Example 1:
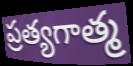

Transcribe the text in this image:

ప్రత్యగాత్మ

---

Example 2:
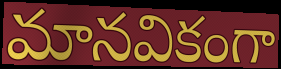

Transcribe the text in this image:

మానవికంగా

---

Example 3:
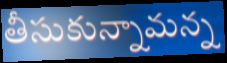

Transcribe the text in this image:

తీసుకున్నామన్న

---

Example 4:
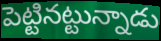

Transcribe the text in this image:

పెట్టినట్టున్నాడు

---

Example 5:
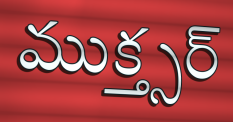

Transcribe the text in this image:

ముక్త్సర్